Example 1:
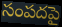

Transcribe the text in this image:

సంపదపై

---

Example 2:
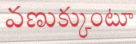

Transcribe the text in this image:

వణుక్కుంటూ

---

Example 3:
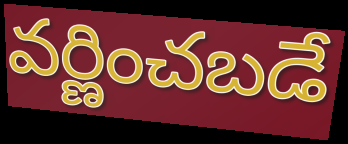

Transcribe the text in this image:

వర్ణించబడే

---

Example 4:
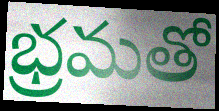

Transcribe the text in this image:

భ్రమతో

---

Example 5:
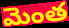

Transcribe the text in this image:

మెంత